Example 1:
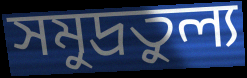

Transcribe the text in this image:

সমুদ্রতুল্য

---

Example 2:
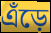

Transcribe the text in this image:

এঁড়ে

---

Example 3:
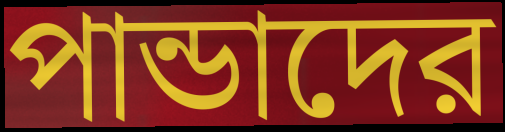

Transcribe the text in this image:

পান্ডাদের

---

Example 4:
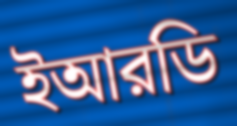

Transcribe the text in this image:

ইআরডি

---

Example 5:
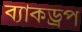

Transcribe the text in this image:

ব্যাকড্রপ